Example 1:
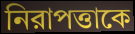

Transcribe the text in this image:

নিরাপত্তাকে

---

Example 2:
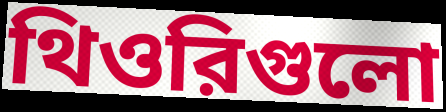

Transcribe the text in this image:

থিওরিগুলো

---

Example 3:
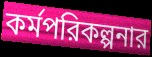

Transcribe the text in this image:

কর্মপরিকল্পনার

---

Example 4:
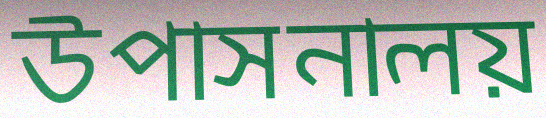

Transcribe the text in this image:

উপাসনালয়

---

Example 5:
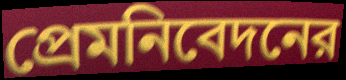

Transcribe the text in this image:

প্রেমনিবেদনের